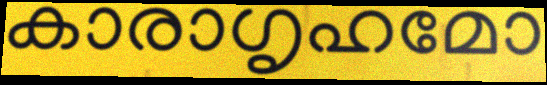
കാരാഗൃഹമോ